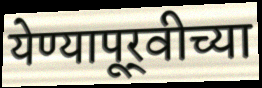
येण्यापूर्वीच्या